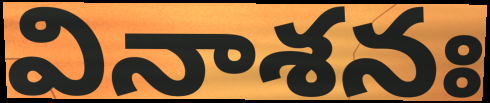
వినాశనః